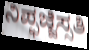
ನಿಪ್ಫಜ್ಜಿಸ್ಸತಿ